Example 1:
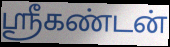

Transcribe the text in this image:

ஸ்ரீகண்டன்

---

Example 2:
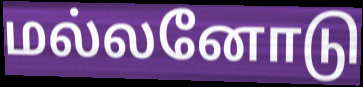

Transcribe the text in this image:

மல்லனோடு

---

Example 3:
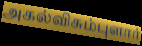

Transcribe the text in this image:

அகல்விசும்புளார்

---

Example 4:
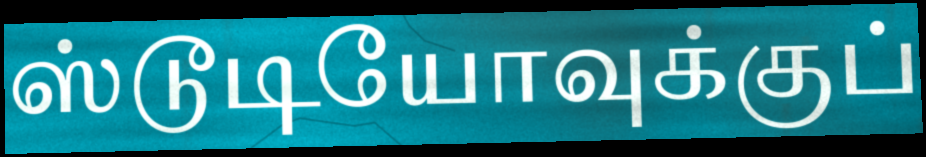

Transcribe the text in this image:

ஸ்டூடியோவுக்குப்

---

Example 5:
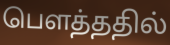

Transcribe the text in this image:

பௌத்ததில்